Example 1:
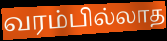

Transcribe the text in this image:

வரம்பில்லாத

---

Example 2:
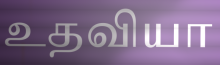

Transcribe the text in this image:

உதவியா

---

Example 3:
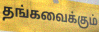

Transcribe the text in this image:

தங்கவைக்கும்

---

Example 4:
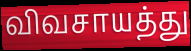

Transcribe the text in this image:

விவசாயத்து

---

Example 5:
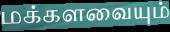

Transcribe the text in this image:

மக்களவையும்